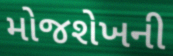
મોજશેખની